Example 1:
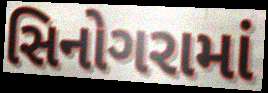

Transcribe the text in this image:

સિનોગરામાં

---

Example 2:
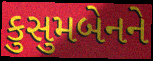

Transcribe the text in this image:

કુસુમબેનને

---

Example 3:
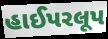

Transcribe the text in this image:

હાઈપરલૂપ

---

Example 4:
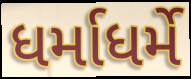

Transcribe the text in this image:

ધર્માધર્મે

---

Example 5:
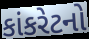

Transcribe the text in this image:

કાંકરેટનો